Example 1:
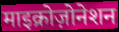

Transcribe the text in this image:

माइक्रोज़ोनेशन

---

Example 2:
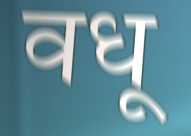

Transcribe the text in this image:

वधू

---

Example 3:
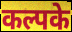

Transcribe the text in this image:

कल्पके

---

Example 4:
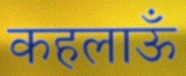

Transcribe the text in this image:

कहलाऊँ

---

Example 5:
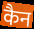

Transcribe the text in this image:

कैन